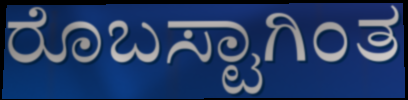
ರೊಬಸ್ಟಾಗಿಂತ